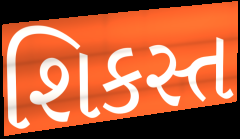
શિકસ્ત